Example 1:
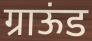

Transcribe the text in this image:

ग्राऊंड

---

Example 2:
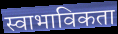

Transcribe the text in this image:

स्वाभाविकता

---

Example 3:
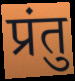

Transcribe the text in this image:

प्रंतु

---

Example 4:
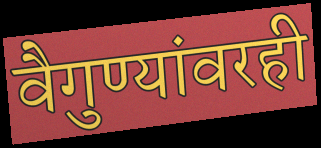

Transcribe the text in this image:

वैगुण्यांवरही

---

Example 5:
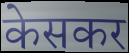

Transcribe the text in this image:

केसकर